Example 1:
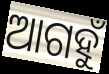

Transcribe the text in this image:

ଆଗହୁଁ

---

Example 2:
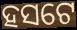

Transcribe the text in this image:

ହସଟେ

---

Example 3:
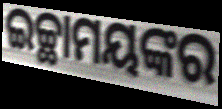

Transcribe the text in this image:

ଇଚ୍ଛାମୟଙ୍କର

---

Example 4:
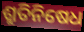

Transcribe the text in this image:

ଶ୍ରୁତିନିଷେଧ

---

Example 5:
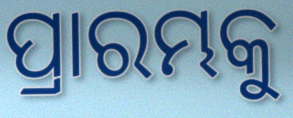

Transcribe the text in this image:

ପ୍ରାରମ୍ଭକୁ